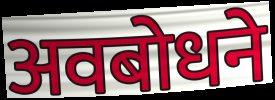
अवबोधने